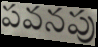
పవనపు